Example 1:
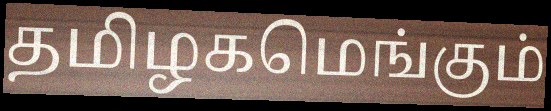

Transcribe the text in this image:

தமிழகமெங்கும்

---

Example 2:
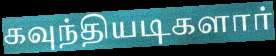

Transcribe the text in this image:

கவுந்தியடிகளார்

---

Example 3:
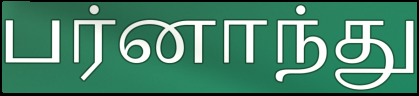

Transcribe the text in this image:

பர்னாந்து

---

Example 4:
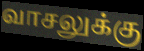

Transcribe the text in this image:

வாசலுக்கு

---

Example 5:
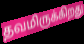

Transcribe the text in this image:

தவமிருக்கிறது